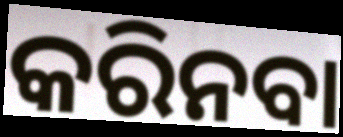
କରିନବା